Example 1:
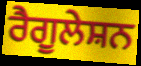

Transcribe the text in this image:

ਰੈਗੂਲੇਸ਼ਨ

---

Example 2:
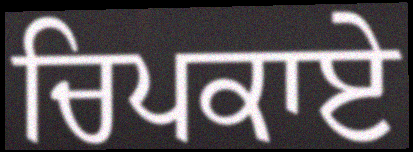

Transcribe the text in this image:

ਚਿਪਕਾਏ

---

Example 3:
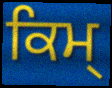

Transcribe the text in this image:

ਕਿਮ੍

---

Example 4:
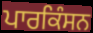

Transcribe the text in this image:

ਪਾਰਕਿੰਸਨ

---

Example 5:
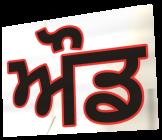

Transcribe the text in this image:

ਔਡ